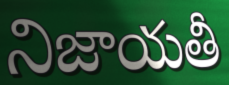
నిజాయతీ